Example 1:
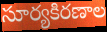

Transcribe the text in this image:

సూర్యకిరణాల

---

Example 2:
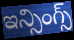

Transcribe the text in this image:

ఇన్సింగ్స్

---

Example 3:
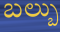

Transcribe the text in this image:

బల్బు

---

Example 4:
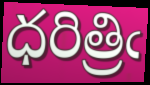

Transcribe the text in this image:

ధరిత్రిఁ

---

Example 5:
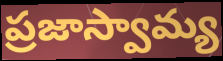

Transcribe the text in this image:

ప్రజాస్వామ్య